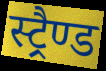
स्ट्रैण्ड